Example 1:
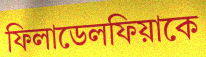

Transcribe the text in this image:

ফিলাডেলফিয়াকে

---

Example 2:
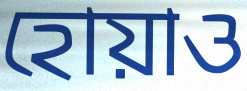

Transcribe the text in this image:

হোয়াও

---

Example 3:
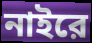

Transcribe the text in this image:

নাইরে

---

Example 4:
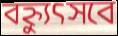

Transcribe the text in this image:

বহ্ন্যুৎসবে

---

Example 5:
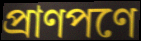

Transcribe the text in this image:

প্রাণপণে